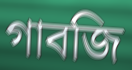
গাবজি